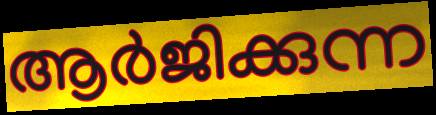
ആർജിക്കുന്ന